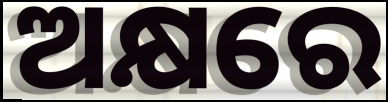
ଅକ୍ଷରେ